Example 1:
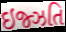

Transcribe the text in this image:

ઇજ્ઝતિ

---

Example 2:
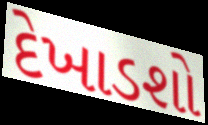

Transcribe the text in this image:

દેખાડશો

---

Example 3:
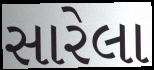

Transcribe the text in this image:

સારેલા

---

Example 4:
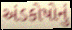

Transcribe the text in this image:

અંડકોષોનું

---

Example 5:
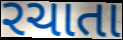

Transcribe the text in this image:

રચાતા